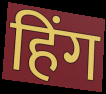
हिंग